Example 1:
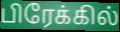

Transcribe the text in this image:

பிரேக்கில்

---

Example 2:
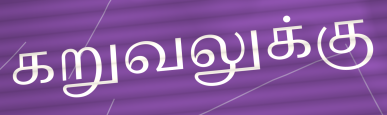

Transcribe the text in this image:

கறுவலுக்கு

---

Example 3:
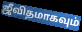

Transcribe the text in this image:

ஜீவிதமாகவும்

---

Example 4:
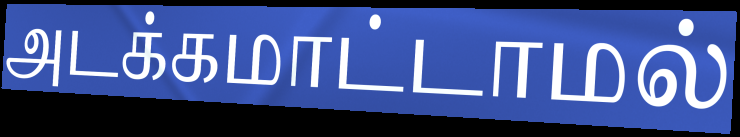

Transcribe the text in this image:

அடக்கமாட்டாமல்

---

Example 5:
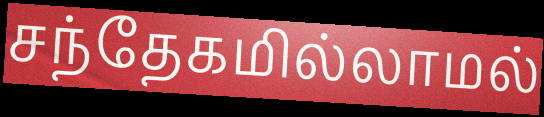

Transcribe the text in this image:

சந்தேகமில்லாமல்